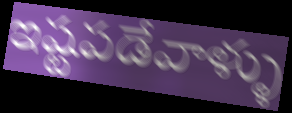
ఇష్టపడేవాళ్ళు